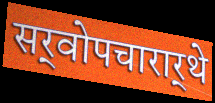
सर्वोपचारार्थे